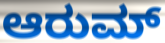
ಆರುಮ್